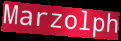
Marzolph